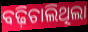
ବଢ଼ିଚାଲିଥିଲା